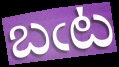
బఁట